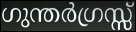
ഗുന്തർഗ്രസ്സ്